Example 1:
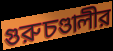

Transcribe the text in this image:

গুরুচণ্ডালীর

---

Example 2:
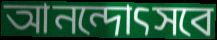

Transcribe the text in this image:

আনন্দোৎসবে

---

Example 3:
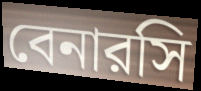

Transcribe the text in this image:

বেনারসি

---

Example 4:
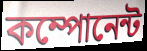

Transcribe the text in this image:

কম্পোনেন্ট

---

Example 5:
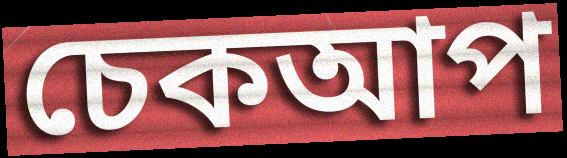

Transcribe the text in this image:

চেকআপ